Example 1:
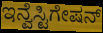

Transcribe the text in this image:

ಇನ್ವೆಸ್ಟಿಗೇಷನ್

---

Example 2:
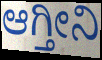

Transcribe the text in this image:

ಆಗ್ತೀನಿ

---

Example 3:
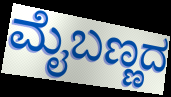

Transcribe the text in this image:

ಮೈಬಣ್ಣದ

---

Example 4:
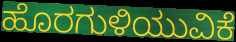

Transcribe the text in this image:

ಹೊರಗುಳಿಯುವಿಕೆ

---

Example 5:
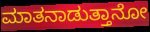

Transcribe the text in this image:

ಮಾತನಾಡುತ್ತಾನೋ